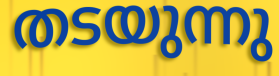
തടയുന്നു